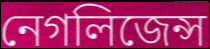
নেগলিজেন্স